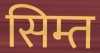
सिम्त